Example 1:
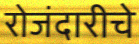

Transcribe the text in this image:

रोजंदारीचे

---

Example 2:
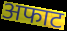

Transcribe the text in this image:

अफाट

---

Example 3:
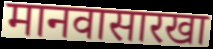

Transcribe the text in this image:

मानवासारखा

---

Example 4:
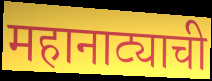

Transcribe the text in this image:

महानाट्याची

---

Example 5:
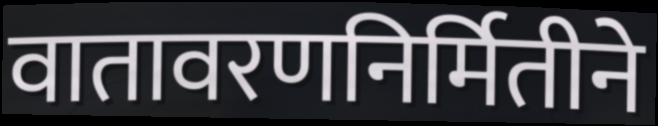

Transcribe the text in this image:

वातावरणनिर्मितीने